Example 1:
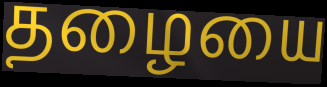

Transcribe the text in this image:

தழையை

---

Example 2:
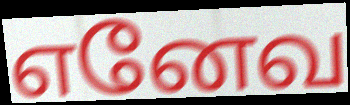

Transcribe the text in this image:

எனேவ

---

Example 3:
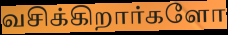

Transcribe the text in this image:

வசிக்கிறார்களோ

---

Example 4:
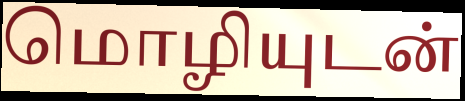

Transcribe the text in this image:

மொழியுடன்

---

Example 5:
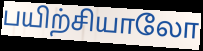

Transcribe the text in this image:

பயிற்சியாலோ